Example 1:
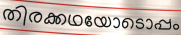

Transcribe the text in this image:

തിരക്കഥയോടൊപ്പം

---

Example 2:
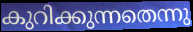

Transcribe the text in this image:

കുറിക്കുന്നതെന്നു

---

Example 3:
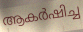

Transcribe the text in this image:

ആകർഷിച്ച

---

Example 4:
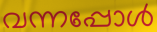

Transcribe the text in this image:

വന്നപ്പോൾ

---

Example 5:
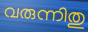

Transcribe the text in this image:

വരുന്നിതു